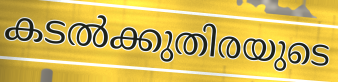
കടൽക്കുതിരയുടെ